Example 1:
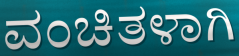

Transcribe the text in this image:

ವಂಚಿತಳಾಗಿ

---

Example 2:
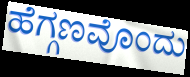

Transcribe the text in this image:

ಹೆಗ್ಗಣವೊಂದು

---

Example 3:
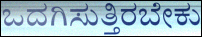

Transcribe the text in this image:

ಒದಗಿಸುತ್ತಿರಬೇಕು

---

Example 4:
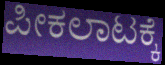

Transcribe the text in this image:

ಪೀಕಲಾಟಕ್ಕೆ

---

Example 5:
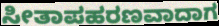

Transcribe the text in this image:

ಸೀತಾಪಹರಣವಾದಾಗ